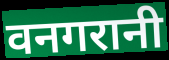
वनगरानी